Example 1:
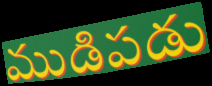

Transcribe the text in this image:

ముడిపడు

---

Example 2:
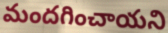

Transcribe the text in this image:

మందగించాయని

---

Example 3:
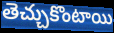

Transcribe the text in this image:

తెచ్చుకొంటాయి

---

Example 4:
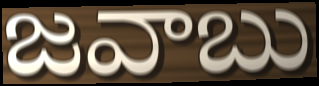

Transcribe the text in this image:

జవాబు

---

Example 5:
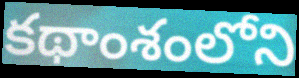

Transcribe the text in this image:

కథాంశంలోని